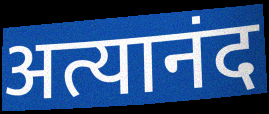
अत्यानंद